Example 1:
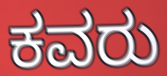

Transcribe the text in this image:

ಕವರು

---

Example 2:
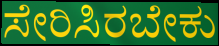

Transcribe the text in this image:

ಸೇರಿಸಿರಬೇಕು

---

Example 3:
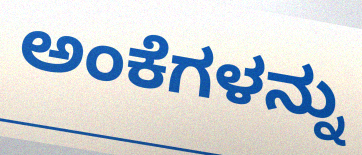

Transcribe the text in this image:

ಅಂಕೆಗಳನ್ನು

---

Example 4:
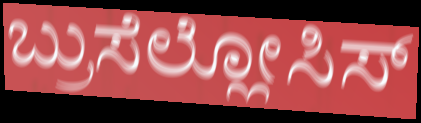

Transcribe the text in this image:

ಬ್ರುಸೆಲ್ಲೋಸಿಸ್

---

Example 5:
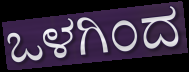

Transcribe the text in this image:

ಒಳಗಿಂದ